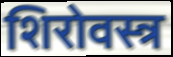
शिरोवस्त्र